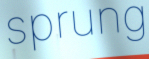
sprung